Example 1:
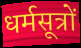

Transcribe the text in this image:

धर्मसूत्रों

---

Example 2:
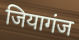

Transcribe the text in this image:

जियागंज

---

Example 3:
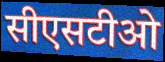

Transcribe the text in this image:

सीएसटीओ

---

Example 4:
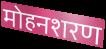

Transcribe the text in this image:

मोहनशरण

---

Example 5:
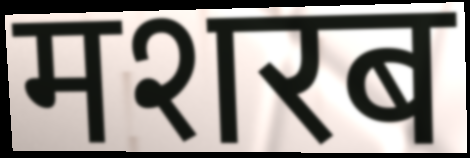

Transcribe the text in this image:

मशरब